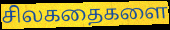
சிலகதைகளை